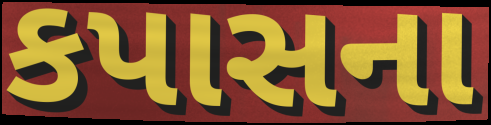
કપાસના